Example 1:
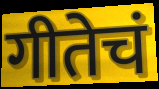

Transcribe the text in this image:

गीतेचं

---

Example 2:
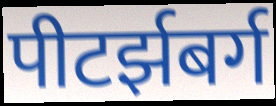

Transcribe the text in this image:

पीटर्झबर्ग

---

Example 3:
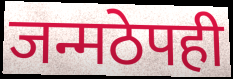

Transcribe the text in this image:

जन्मठेपही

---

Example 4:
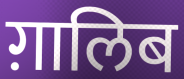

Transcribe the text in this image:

ग़ालिब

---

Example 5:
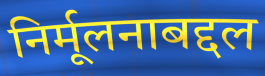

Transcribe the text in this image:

निर्मूलनाबद्दल